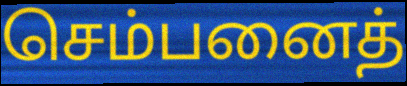
செம்பனைத்